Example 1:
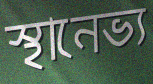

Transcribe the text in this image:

স্থানেভ্য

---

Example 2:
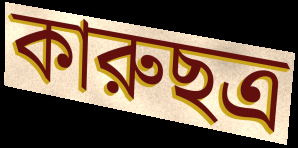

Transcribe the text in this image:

কারুছত্র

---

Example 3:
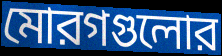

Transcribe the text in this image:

মোরগগুলোর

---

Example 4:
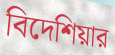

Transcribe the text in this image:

বিদেশিয়ার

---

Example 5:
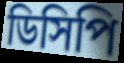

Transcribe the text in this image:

ডিসিপি